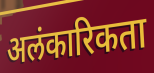
अलंकारिकता